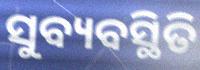
ସୁବ୍ୟବସ୍ଥିତି